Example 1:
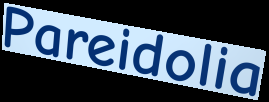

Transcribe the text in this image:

Pareidolia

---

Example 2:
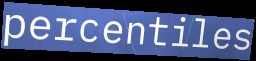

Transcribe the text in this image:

percentiles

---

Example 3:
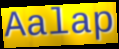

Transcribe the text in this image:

Aalap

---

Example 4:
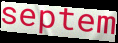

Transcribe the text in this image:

septem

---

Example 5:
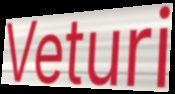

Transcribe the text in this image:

Veturi